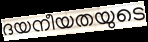
ദയനീയതയുടെ